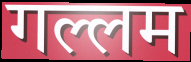
गल्लम